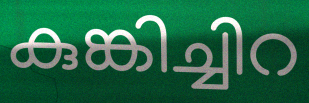
കുങ്കിച്ചിറ